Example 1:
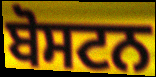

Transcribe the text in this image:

ਬੋਸਟਨ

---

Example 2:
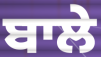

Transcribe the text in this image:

ਬਾਲੇ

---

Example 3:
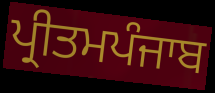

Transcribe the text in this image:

ਪ੍ਰੀਤਮਪੰਜਾਬ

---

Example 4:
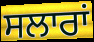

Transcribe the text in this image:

ਸਲਾਰਾਂ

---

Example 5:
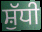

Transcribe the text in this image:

ਸ਼ੁੱਧੀ